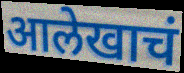
आलेखाचं